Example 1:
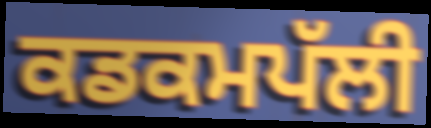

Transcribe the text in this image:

ਕਡਕਮਪੱਲੀ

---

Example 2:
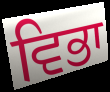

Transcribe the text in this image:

ਵਿਭਾ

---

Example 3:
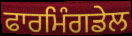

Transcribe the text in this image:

ਫਾਰਮਿੰਗਡੇਲ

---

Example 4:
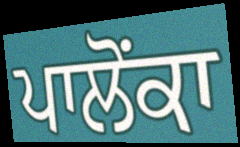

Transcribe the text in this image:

ਪਾਲੋਂਕਾ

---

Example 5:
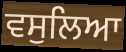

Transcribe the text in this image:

ਵਸੁਲਿਆ